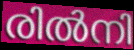
രിൽനി